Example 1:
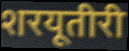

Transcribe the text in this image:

शरयूतीरी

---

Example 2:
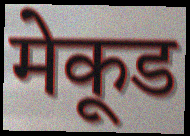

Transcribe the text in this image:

मेकूड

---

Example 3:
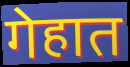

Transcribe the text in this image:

गेहात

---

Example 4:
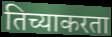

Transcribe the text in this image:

तिच्याकरता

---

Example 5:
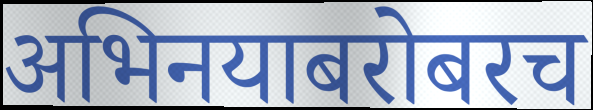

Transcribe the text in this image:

अभिनयाबरोबरच